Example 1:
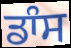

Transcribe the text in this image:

ਡਾੰਸ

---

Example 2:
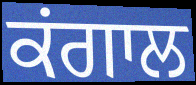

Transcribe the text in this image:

ਕਂਗਾਲ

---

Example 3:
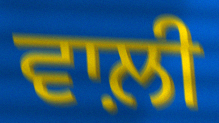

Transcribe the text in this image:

ਵਾਲ਼ੀ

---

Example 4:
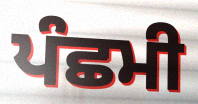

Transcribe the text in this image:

ਪੰਛਮੀ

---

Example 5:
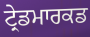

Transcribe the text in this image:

ਟ੍ਰੇਡਮਾਰਕਡ